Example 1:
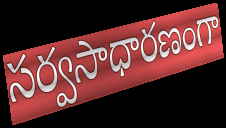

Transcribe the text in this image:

సర్వసాధారణంగా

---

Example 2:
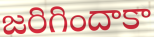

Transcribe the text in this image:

జరిగిందాకా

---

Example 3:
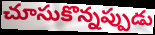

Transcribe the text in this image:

చూసుకొన్నప్పుడు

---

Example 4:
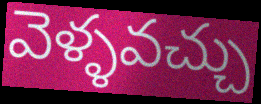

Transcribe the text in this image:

వెళ్ళవచ్చు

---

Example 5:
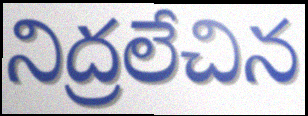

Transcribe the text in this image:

నిద్రలేచిన